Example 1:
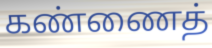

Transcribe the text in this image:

கண்ணைத்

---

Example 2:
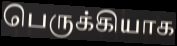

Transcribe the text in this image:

பெருக்கியாக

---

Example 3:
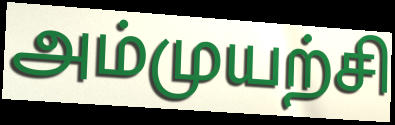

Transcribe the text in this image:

அம்முயற்சி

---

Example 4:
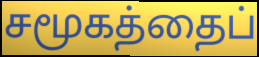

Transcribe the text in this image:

சமூகத்தைப்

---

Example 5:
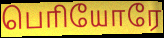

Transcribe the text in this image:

பெரியோரே